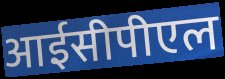
आईसीपीएल